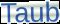
Taub